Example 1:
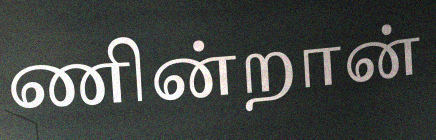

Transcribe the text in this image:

ணின்றான்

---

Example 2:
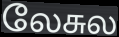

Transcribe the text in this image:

லேசுல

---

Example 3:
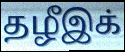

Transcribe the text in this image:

தழீஇக்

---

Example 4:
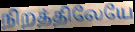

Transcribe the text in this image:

நிறத்திலேயே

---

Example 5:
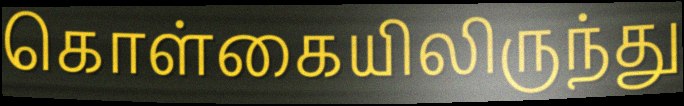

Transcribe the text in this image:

கொள்கையிலிருந்து